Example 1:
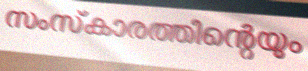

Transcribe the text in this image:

സംസ്‌കാരത്തിന്റെയും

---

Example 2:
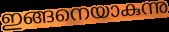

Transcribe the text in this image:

ഇങ്ങനെയാകുന്നു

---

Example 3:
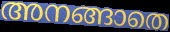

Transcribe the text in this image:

അനങ്ങാതെ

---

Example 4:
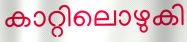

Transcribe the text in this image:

കാറ്റിലൊഴുകി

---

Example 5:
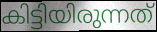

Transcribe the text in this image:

കിട്ടിയിരുന്നത്